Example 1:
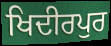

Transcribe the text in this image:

ਖਿਦੀਰਪੁਰ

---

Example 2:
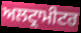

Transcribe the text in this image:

ਅਲਟ੍ਰਾਮੀਟਰ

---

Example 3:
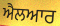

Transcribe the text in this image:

ਐਲਆਰ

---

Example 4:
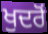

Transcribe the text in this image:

ਖੁਦਰੋਂ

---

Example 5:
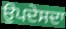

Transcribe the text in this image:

ਉਪਦੇਸਦਾ